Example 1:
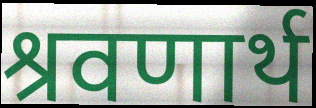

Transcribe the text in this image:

श्रवणार्थ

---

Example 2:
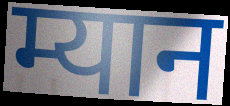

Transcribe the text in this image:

म्यान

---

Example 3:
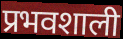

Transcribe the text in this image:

प्रभवशाली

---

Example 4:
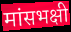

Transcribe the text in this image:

मांसभक्षी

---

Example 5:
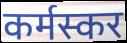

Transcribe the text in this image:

कर्मस्कर